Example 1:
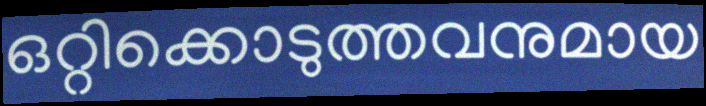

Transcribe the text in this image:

ഒറ്റിക്കൊടുത്തവനുമായ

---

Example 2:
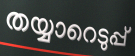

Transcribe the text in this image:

തയ്യാറെടുപ്പ്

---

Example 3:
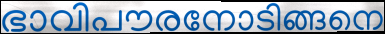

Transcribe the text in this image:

ഭാവിപൗരനോടിങ്ങനെ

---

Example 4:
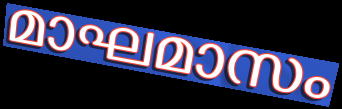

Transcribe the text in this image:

മാഘമാസം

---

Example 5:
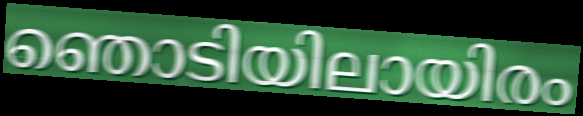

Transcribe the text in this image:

ഞൊടിയിലായിരം